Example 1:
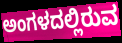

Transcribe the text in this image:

ಅಂಗಳದಲ್ಲಿರುವ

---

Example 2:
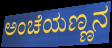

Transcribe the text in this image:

ಅಂಚೆಯಣ್ಣನ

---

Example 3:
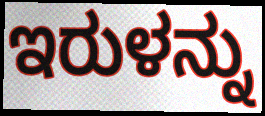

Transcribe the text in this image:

ಇರುಳನ್ನು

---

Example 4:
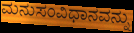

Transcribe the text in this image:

ಮನುಸಂವಿಧಾನವನ್ನು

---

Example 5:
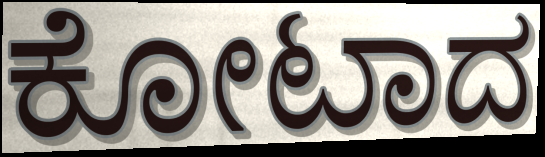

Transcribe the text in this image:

ಕೋಟಾದ